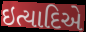
ઇત્યાદિએ